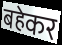
बहेकर